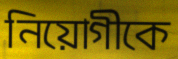
নিয়োগীকে